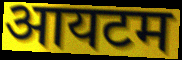
आयटम